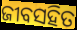
ଜୀବସହିତ